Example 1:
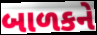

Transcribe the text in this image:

બાળકને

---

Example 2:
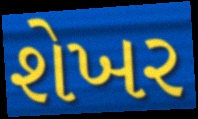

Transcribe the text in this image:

શેખર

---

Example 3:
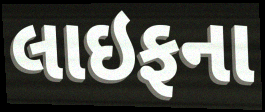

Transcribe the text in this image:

લાઇફના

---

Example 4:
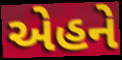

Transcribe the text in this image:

એહને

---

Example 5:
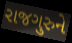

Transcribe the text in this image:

રાજગુરુને